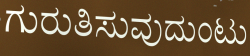
ಗುರುತಿಸುವುದುಂಟು